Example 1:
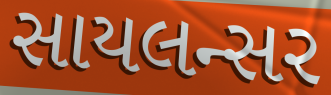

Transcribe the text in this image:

સાયલન્સર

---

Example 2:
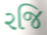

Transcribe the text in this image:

રજિ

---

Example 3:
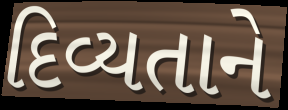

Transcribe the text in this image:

દિવ્યતાને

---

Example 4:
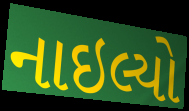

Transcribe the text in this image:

નાઇલ્યો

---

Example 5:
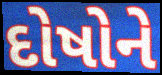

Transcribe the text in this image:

દોષોને